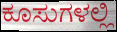
ಕೂಸುಗಳಲ್ಲಿ